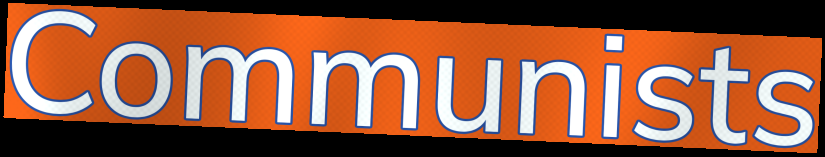
Communists